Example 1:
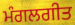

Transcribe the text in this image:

ਮੰਗਲਗੀਤ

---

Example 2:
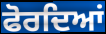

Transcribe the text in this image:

ਫੋਰਦਿਆਂ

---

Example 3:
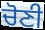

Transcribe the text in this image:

ਚੋਣੀ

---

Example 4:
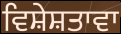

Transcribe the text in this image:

ਵਿਸ਼ੇਸ਼ਤਾਵਾ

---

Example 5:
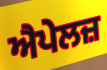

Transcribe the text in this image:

ਐਪੇਲਜ਼